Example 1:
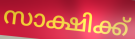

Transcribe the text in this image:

സാക്ഷിക്ക്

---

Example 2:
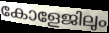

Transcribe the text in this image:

കോളേജിലും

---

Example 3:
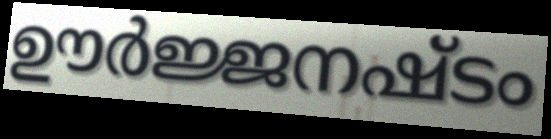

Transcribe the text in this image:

ഊർജ്ജനഷ്ടം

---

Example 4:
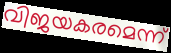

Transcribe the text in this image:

വിജയകരമെന്ന്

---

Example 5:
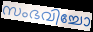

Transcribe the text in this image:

സംഭവിച്ചോ